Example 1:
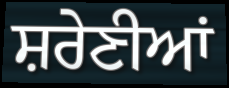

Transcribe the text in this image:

ਸ਼ਰੇਣੀਆਂ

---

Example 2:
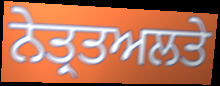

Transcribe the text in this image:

ਨੇਤ੍ਰਤਅਲਤੇ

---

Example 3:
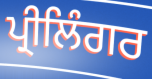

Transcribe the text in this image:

ਪ੍ਰੀਲਿੰਗਰ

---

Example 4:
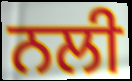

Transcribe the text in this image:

ਨਲੀ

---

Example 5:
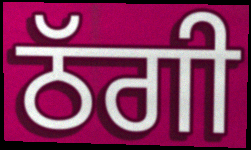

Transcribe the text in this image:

ਠੱਗੀ